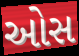
ઓસ